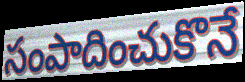
సంపాదించుకొనే